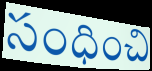
సంధించి